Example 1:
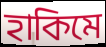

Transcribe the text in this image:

হাকিমে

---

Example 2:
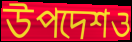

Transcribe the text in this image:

উপদেশও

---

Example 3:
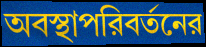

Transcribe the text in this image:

অবস্থাপরিবর্তনের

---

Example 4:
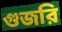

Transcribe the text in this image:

গুজরি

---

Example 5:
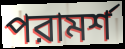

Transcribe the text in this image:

পরামর্শ